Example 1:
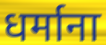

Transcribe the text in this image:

धर्माना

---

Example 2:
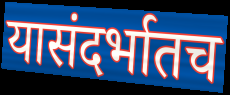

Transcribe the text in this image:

यासंदर्भातच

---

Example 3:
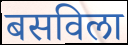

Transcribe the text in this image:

बसविला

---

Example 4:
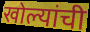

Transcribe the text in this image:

खोल्यांची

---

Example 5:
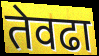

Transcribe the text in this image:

तेवढा